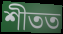
শীতত